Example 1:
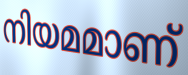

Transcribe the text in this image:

നിയമമാണ്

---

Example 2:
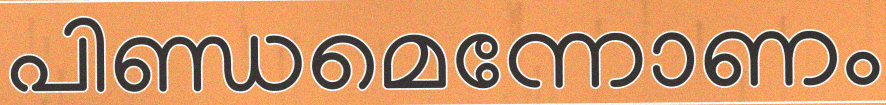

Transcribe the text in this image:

പിണ്ഡമെന്നോണം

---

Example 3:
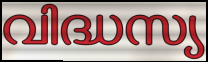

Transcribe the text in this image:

വിദ്ധസ്യ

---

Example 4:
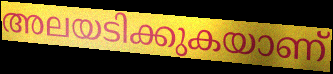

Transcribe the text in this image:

അലയടിക്കുകയാണ്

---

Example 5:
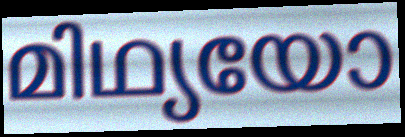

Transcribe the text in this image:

മിഥ്യയോ